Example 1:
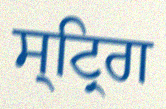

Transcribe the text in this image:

ਸ੍ਟ੍ਰਿਗ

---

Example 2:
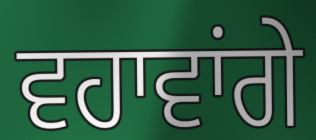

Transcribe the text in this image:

ਵਹਾਵਾਂਗੇ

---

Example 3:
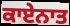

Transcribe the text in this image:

ਕਾਏਨਾਤ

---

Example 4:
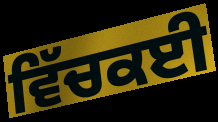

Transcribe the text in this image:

ਵਿੱਚਕਈ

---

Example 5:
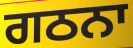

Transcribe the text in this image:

ਗਠਨਾ